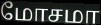
மோசமா